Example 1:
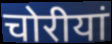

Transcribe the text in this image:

चोरीयां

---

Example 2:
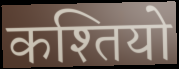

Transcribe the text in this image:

कश्तियो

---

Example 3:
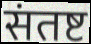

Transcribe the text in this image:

संतष्ट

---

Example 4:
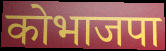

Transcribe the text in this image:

कोभाजपा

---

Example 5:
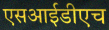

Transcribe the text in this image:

एसआईडीएच